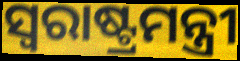
ସ୍ବରାଷ୍ଟ୍ରମନ୍ତ୍ରୀ